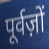
पूर्वज़ों